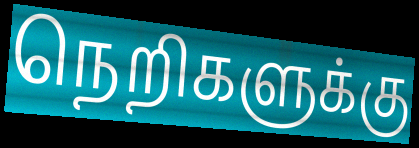
நெறிகளுக்கு